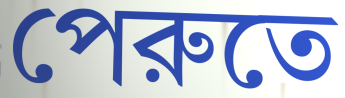
পেরুতে